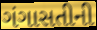
ગંગાસતીની